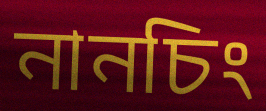
নানচিং